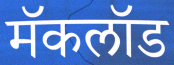
मॅकलॉड